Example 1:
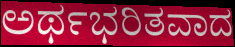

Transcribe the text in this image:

ಅರ್ಥಭರಿತವಾದ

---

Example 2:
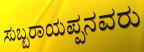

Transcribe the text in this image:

ಸುಬ್ಬರಾಯಪ್ಪನವರು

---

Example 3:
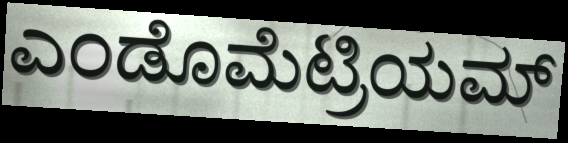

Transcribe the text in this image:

ಎಂಡೊಮೆಟ್ರಿಯಮ್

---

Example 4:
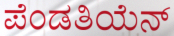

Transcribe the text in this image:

ಪೆಂಡತಿಯೆನ್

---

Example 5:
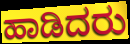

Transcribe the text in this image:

ಹಾಡಿದರು